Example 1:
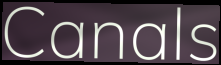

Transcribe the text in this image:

Canals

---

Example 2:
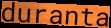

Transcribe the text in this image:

duranta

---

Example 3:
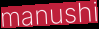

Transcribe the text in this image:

manushi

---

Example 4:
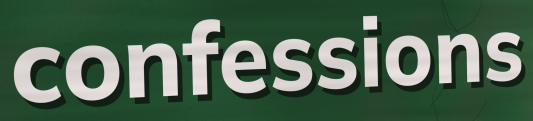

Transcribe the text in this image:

confessions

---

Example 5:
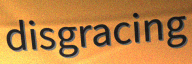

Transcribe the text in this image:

disgracing